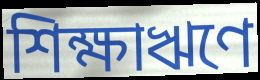
শিক্ষাঋণে